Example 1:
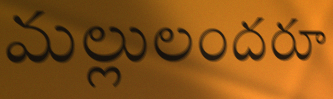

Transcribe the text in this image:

మల్లులందరూ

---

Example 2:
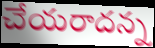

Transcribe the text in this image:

చేయరాదన్న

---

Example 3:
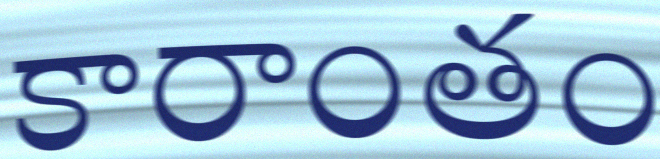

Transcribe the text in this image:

కారాంతం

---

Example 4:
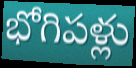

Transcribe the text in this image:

భోగిపళ్లు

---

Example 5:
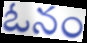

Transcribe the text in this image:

ఓనం